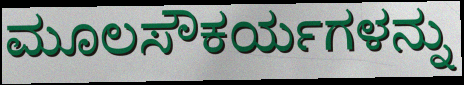
ಮೂಲಸೌಕರ್ಯಗಳನ್ನು